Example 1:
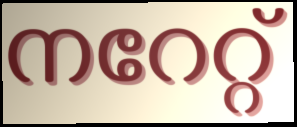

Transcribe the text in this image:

നറേറ്റ്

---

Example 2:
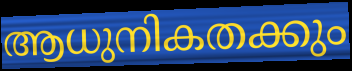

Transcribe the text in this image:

ആധുനികതക്കും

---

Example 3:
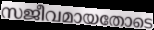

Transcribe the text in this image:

സജീവമായതോടെ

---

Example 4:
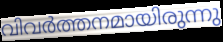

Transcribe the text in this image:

വിവർത്തനമായിരുന്നു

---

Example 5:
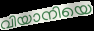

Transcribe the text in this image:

വിയാനിയെ